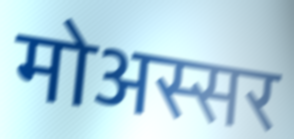
मोअस्सर